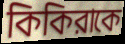
কিকিরাকে